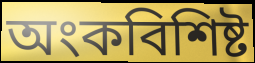
অংকবিশিষ্ট